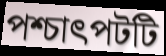
পশ্চাৎপটটি